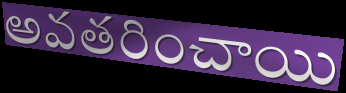
అవతరించాయి